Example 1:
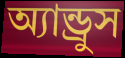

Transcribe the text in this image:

অ্যান্ড্রুস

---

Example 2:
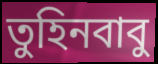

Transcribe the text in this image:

তুহিনবাবু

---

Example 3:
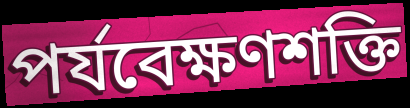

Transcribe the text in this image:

পর্যবেক্ষণশক্তি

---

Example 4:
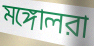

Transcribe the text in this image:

মঙ্গোলরা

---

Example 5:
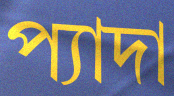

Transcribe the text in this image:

প্যাদা